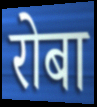
रोबा